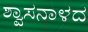
ಶ್ವಾಸನಾಳದ